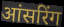
आंसरिंग